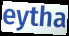
eytha